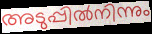
അടുപ്പിൽനിന്നും